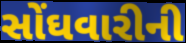
સોંઘવારીની